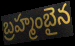
బ్రహ్మంబైన